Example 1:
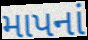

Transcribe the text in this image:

માપનાં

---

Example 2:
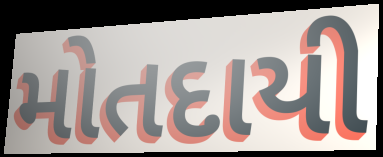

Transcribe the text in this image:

મોતદાયી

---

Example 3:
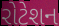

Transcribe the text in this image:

રોટેશન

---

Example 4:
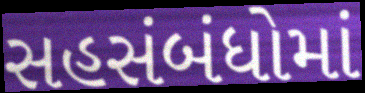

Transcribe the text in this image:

સહસંબંધોમાં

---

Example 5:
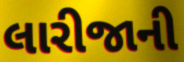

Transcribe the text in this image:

લારીજાની